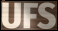
UFS